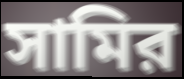
সামির